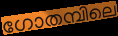
ഗോതമ്പിലെ